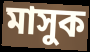
মাসুক